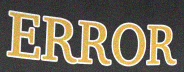
ERROR